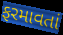
ફરમાવતાં